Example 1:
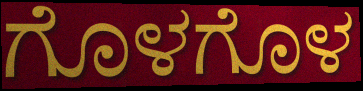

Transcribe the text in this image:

ಗೊಳಗೊಳ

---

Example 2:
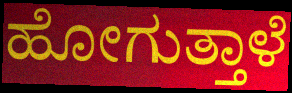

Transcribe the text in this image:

ಹೋಗುತ್ತಾಳೆ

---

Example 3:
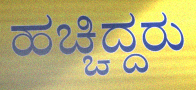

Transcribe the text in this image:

ಹಚ್ಚಿದ್ದರು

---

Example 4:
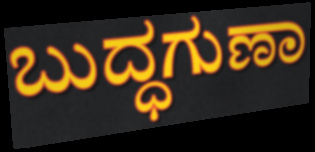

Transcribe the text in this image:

ಬುದ್ಧಗುಣಾ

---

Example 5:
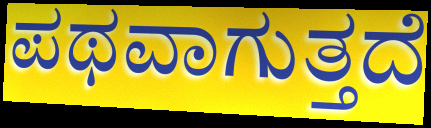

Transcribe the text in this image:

ಪಥವಾಗುತ್ತದೆ